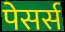
पेसर्स